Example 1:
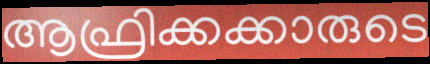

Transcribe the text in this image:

ആഫ്രിക്കക്കാരുടെ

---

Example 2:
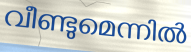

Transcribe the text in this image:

വീണ്ടുമെന്നിൽ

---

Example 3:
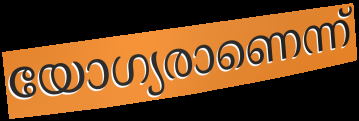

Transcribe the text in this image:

യോഗ്യരാണെന്ന്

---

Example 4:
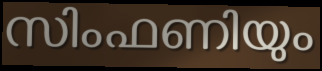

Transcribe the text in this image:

സിംഫണിയും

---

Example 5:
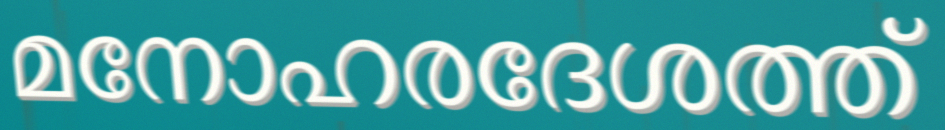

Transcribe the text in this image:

മനോഹരദേശത്ത്